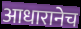
आधारानेच